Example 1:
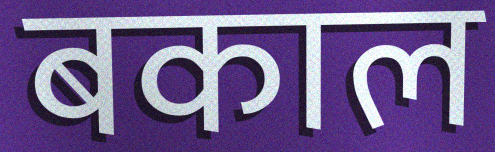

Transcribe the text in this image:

बकाल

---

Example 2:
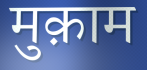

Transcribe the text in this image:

मुक़ाम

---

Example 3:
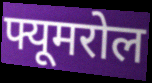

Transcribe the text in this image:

फ्यूमरोल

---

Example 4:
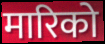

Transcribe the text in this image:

मारिको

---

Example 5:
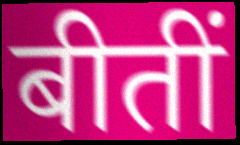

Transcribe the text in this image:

बीतीं